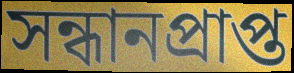
সন্ধানপ্রাপ্ত